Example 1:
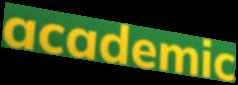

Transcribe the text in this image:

academic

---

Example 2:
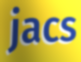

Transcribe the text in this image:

jacs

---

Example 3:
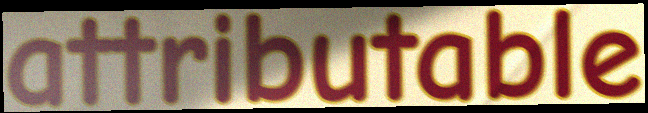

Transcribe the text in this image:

attributable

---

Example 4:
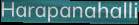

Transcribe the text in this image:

Harapanahalli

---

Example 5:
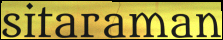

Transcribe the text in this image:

sitaraman